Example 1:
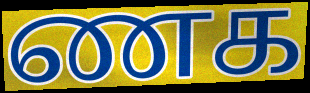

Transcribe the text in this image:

ணக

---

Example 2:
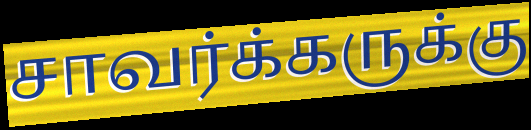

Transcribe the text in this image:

சாவர்க்கருக்கு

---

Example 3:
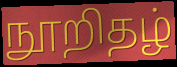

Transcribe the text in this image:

நூறிதழ்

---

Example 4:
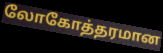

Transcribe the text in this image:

லோகோத்தரமான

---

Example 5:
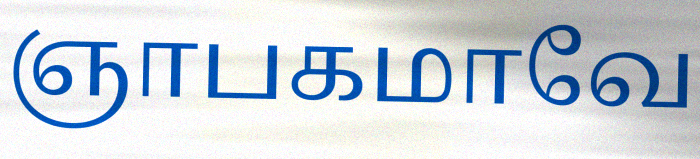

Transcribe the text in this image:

ஞாபகமாவே